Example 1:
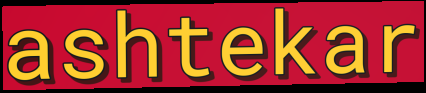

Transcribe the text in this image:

ashtekar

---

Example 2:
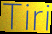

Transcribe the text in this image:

Tiri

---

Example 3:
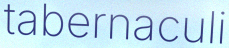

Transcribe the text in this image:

tabernaculi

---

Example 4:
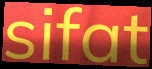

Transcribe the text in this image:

sifat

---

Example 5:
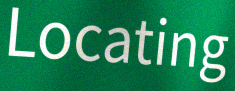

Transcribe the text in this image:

Locating